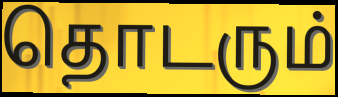
தொடரும்